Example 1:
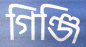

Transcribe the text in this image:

গিঞ্জি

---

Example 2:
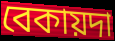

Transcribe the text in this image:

বেকায়দা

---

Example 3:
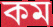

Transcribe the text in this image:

কম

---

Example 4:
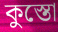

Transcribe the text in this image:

কুস্তো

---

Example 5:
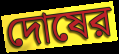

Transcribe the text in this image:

দোষের